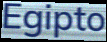
Egipto